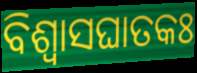
ବିଶ୍ୱାସଘାତକଃ